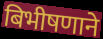
बिभीषणाने